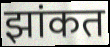
झांकत